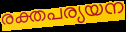
രക്തപര്യയന